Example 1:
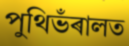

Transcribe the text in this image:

পুথিভঁৰালত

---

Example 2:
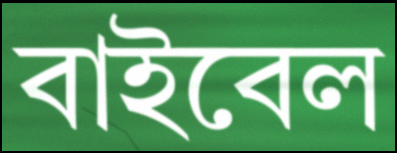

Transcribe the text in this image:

বাইবেল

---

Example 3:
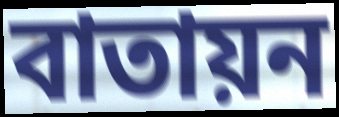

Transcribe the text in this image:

বাতায়ন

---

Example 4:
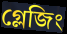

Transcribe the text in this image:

গ্লেজিং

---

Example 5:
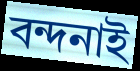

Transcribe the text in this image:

বন্দনাই